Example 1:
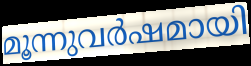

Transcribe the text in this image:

മൂന്നുവർഷമായി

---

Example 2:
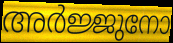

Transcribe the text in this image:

അർജ്ജുനോ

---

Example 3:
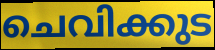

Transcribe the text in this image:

ചെവിക്കുട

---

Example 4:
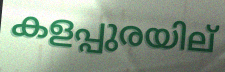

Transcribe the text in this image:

കളപ്പുരയില്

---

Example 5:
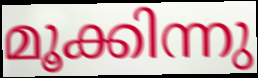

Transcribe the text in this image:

മൂക്കിന്നു